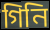
গিনি